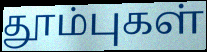
தூம்புகள்